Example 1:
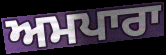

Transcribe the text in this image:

ਅਮਪਾਰਾ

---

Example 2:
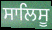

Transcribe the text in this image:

ਸਾਲਿਸੂ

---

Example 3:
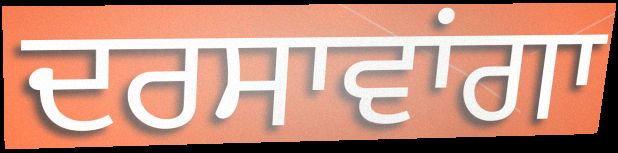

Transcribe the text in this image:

ਦਰਸਾਵਾਂਗਾ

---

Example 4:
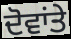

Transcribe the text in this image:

ਦੋਵਾਂਤੇ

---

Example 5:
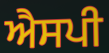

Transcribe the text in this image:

ਐਸਪੀ